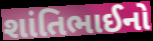
શાંતિભાઈનો